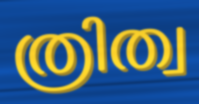
ത്രിത്വ